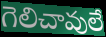
గెలిచావులే